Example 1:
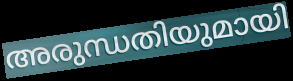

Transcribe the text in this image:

അരുന്ധതിയുമായി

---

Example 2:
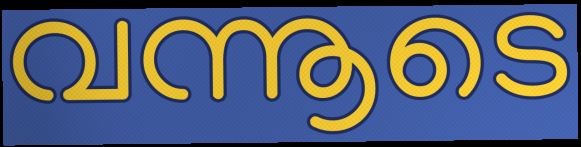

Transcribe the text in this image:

വന്നൂടെ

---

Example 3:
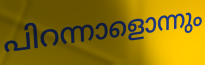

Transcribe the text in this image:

പിറന്നാളൊന്നും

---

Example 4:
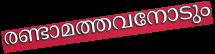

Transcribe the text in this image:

രണ്ടാമത്തവനോടും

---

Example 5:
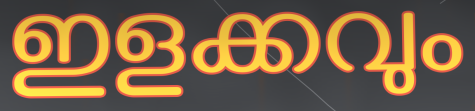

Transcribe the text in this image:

ഇളക്കവും